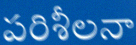
పరిశీలనా